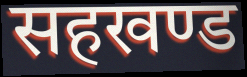
सहखण्ड